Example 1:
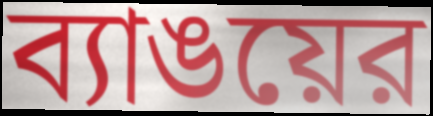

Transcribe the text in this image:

ব্যাঙয়ের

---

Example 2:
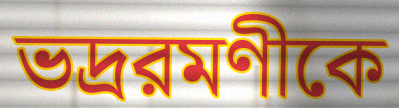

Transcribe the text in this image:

ভদ্ররমণীকে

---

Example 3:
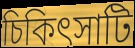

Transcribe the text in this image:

চিকিৎসাটি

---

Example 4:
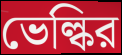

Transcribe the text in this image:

ভেল্কির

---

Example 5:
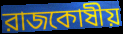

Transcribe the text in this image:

রাজকোষীয়